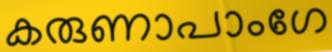
കരുണാപാംഗേ